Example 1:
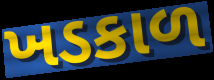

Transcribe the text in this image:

ખડકાળ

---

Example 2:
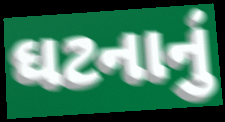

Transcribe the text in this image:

ઘટનાનું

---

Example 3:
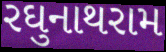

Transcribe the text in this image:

રઘુનાથરામ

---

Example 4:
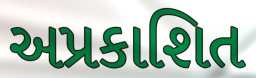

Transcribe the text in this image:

અપ્રકાશિત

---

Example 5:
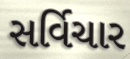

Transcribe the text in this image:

સર્વિચાર